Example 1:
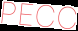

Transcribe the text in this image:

PECC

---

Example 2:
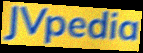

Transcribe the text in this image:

JVpedia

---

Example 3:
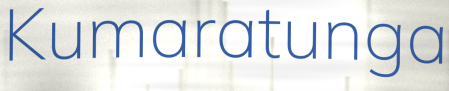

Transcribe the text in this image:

Kumaratunga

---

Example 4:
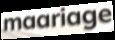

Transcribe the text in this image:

maariage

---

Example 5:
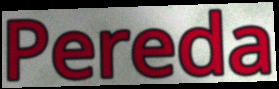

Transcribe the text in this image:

Pereda